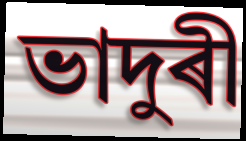
ভাদুৰী